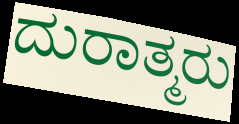
ದುರಾತ್ಮರು